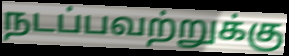
நடப்பவற்றுக்கு